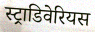
स्ट्राडिवेरियस